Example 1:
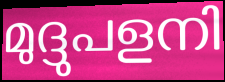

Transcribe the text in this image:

മുദ്ദുപളനി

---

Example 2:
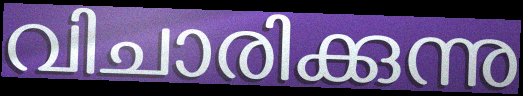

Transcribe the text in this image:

വിചാരിക്കുന്നു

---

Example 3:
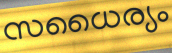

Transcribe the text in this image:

സധൈര്യം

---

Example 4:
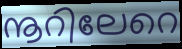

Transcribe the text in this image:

നൂറിലേറെ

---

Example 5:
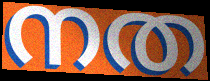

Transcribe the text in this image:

നത